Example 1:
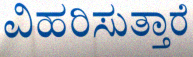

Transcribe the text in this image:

ವಿಹರಿಸುತ್ತಾರೆ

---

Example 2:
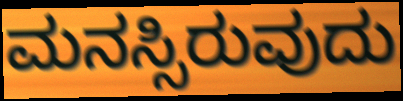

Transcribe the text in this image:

ಮನಸ್ಸಿರುವುದು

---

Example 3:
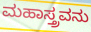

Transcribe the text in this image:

ಮಹಾಸ್ತ್ರವನು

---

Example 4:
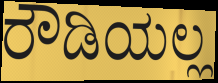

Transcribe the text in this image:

ರೌಡಿಯಲ್ಲ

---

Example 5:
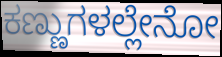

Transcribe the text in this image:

ಕಣ್ಣುಗಳಲ್ಲೇನೋ